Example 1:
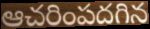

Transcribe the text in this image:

ఆచరింపదగిన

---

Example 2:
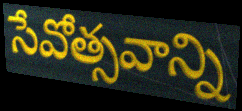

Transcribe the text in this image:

సేవోత్సవాన్ని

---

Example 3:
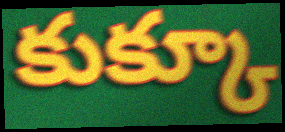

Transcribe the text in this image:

కుక్కూ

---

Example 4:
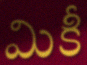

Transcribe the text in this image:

మికీ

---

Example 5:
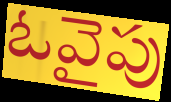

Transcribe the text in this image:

ఓవైపు